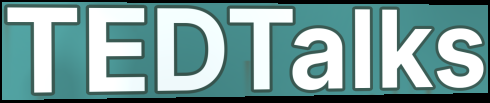
TEDTalks